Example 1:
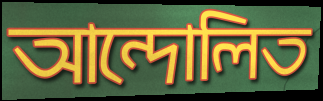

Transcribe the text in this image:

আন্দোলিত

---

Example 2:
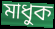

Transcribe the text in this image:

মাধুক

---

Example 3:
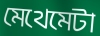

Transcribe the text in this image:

মেথেমেটা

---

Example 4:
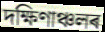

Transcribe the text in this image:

দক্ষিণাঞ্চলৰ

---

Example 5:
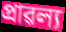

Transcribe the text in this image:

প্ৰাৱল্য